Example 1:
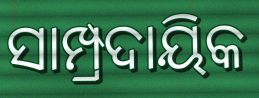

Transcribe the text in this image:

ସାମ୍ପ୍ରଦାୟିକ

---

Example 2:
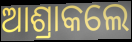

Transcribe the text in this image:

ଆଶ୍ରାକଲେ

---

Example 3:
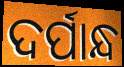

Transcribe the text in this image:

ଦର୍ପାନ୍ଧ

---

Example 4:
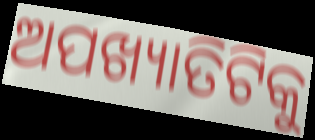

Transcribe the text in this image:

ଅପଖ୍ୟାତିଟିକୁ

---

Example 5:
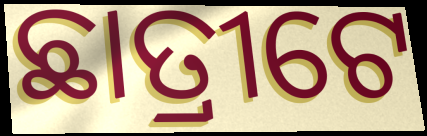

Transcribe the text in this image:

ଛାତ୍ରୀଟେ